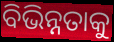
ବିଭିନ୍ନତାକୁ